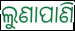
ଲୁଣାପାଣି